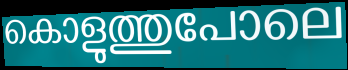
കൊളുത്തുപോലെ